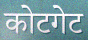
कोटगेट